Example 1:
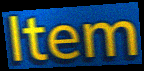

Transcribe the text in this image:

Item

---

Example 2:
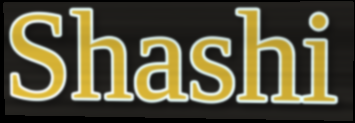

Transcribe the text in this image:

Shashi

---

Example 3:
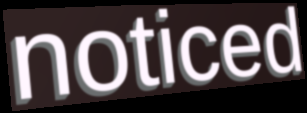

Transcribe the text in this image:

noticed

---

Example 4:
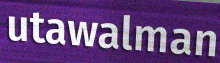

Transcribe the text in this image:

utawalman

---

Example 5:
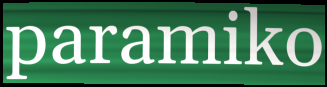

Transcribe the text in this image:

paramiko